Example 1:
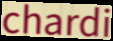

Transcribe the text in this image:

chardi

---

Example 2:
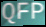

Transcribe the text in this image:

QFP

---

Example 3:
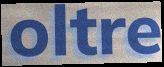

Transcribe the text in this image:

oltre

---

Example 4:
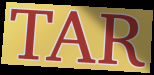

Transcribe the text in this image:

TAR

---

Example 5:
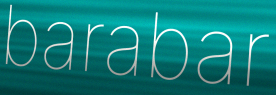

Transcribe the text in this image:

barabar